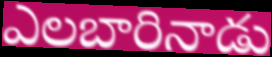
ఎలబారినాడు